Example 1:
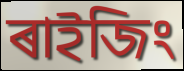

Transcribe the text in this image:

ৰাইজিং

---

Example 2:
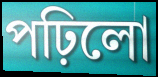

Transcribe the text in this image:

পঢ়িলো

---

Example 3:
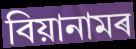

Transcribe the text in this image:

বিয়ানামৰ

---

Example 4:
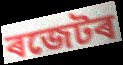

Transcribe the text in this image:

ৰজেটৰ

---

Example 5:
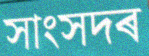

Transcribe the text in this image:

সাংসদৰ